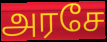
அரசே